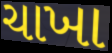
ચાખા